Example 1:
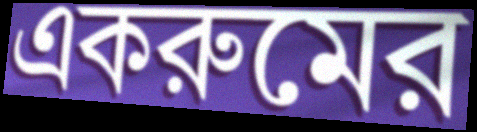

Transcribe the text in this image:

একরুমের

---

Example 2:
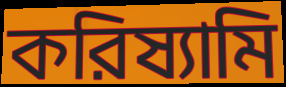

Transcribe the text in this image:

করিষ্যামি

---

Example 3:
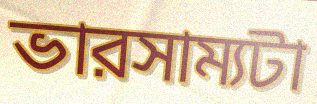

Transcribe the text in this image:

ভারসাম্যটা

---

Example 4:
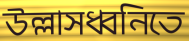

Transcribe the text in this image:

উল্লাসধ্বনিতে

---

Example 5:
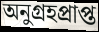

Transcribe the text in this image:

অনুগ্রহপ্রাপ্ত